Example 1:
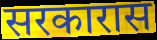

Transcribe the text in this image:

सरकारास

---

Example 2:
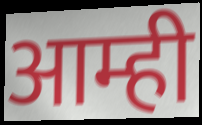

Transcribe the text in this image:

आम्‍ही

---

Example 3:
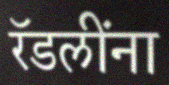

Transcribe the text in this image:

रॅडलींना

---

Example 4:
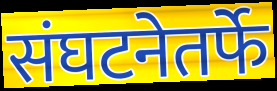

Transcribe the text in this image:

संघटनेतर्फे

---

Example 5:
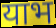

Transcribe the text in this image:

याभ